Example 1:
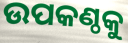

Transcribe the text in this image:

ଉପକଣ୍ଠକୁ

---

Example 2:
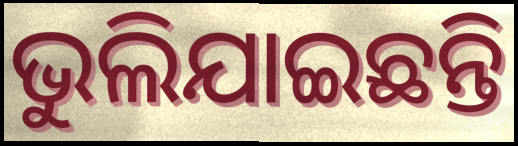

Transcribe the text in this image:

ଭୁଲିଯାଇଛନ୍ତି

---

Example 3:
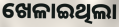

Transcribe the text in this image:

ଖେଳାଇଥିଲା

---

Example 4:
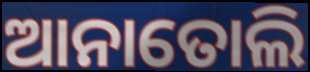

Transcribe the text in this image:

ଆନାତୋଲି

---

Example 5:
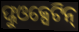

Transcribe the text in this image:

ଫ୍ଲୁଓକ୍ସେଟିନ୍